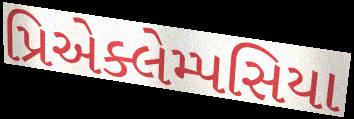
પ્રિએક્લેમ્પસિયા